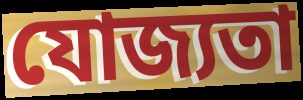
যোজ্যতা